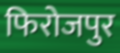
फिरोजपुर